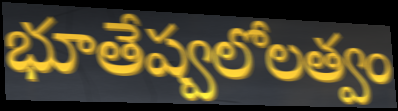
భూతేష్వలోలత్వం